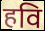
हवि